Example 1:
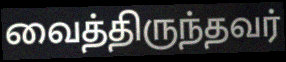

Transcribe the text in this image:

வைத்திருந்தவர்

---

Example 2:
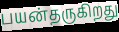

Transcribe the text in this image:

பயன்தருகிறது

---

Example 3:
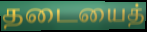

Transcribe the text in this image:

தடையைத்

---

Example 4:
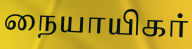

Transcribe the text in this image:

நையாயிகர்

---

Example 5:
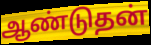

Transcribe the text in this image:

ஆண்டுதன்